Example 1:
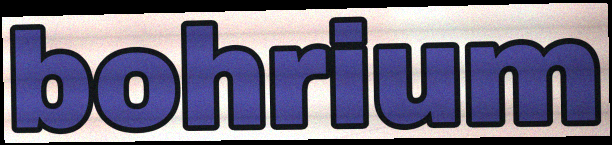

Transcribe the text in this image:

bohrium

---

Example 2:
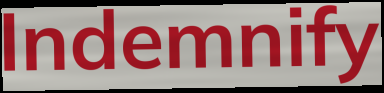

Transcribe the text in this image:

Indemnify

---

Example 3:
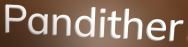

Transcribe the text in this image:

Pandither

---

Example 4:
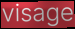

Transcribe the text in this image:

visage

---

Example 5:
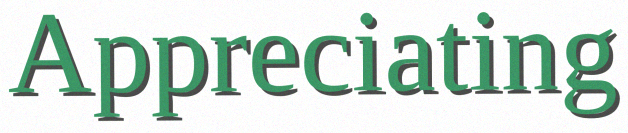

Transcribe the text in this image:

Appreciating